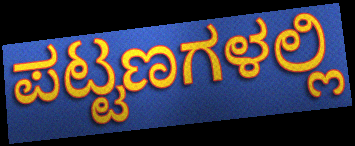
ಪಟ್ಟಣಗಳಲ್ಲಿ